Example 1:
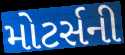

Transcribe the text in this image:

મોટર્સની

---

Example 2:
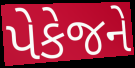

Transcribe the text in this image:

પેકેજને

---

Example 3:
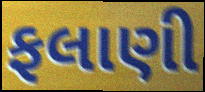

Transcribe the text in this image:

ફલાણી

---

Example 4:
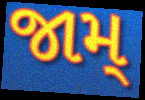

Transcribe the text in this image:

જામ્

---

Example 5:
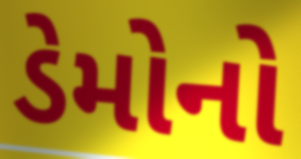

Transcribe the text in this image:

ડેમોનો